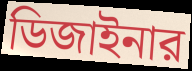
ডিজাইনার